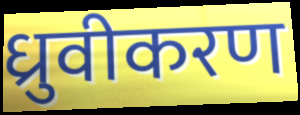
ध्रुवीकरण